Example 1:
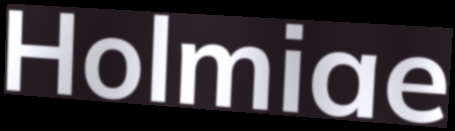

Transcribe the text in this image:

Holmiae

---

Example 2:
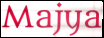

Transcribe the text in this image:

Majya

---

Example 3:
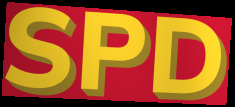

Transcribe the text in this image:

SPD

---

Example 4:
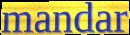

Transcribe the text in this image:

mandar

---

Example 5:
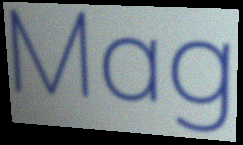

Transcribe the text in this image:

Mag